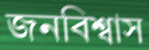
জনবিশ্বাস